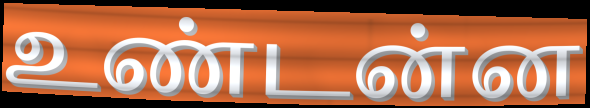
உண்டன்ன